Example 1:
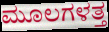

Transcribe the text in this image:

ಮೂಲಗಳತ್ತ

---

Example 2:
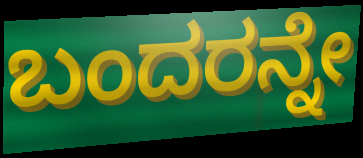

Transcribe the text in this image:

ಬಂದರನ್ನೇ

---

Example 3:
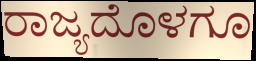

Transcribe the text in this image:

ರಾಜ್ಯದೊಳಗೂ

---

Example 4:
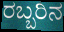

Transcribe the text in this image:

ರಬ್ಬರಿನ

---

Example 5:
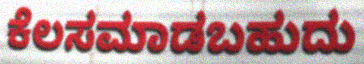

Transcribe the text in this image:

ಕೆಲಸಮಾಡಬಹುದು